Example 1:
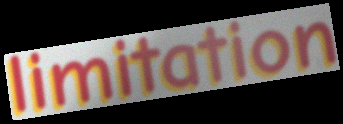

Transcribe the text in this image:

limitation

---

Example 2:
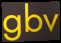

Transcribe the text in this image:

gbv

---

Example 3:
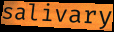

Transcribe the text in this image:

salivary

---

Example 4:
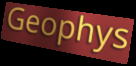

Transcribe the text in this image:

Geophys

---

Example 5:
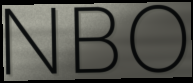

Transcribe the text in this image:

NBO